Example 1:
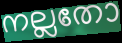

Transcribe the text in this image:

നല്ലതോ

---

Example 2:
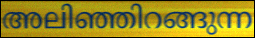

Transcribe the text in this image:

അലിഞ്ഞിറങ്ങുന്ന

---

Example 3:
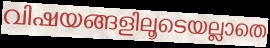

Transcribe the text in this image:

വിഷയങ്ങളിലൂടെയല്ലാതെ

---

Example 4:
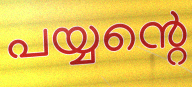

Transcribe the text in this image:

പയ്യന്റെ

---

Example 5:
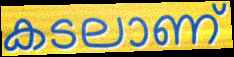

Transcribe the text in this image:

കടലാണ്